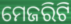
ମେଜରିଟି